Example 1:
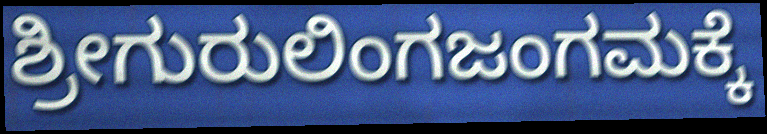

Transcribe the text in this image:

ಶ್ರೀಗುರುಲಿಂಗಜಂಗಮಕ್ಕೆ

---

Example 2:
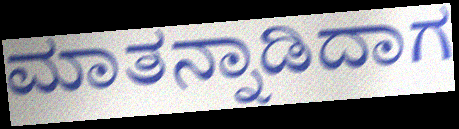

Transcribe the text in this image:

ಮಾತನ್ನಾಡಿದಾಗ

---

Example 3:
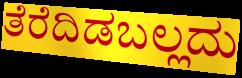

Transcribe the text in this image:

ತೆರೆದಿಡಬಲ್ಲದು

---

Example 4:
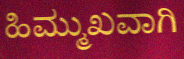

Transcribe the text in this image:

ಹಿಮ್ಮುಖವಾಗಿ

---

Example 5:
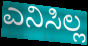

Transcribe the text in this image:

ಎನಿಸಿಲ್ಲ